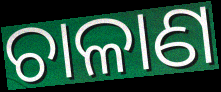
ଚାଳାଣ